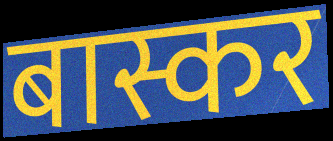
बास्कर